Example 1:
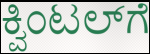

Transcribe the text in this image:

ಕ್ವಿಂಟಲ್‌ಗೆ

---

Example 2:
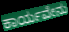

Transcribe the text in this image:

ಕಾರ್ಯವೇನು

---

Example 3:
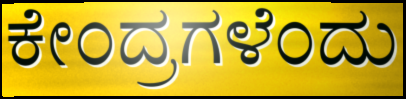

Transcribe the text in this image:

ಕೇಂದ್ರಗಳೆಂದು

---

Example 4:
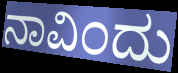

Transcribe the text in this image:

ನಾವಿಂದು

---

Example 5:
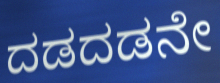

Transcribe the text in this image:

ದಡದಡನೇ